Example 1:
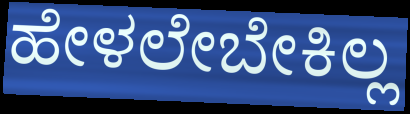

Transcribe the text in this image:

ಹೇಳಲೇಬೇಕಿಲ್ಲ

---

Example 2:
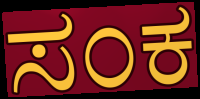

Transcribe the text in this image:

ಸಂಕ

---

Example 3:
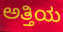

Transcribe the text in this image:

ಅತ್ತಿಯ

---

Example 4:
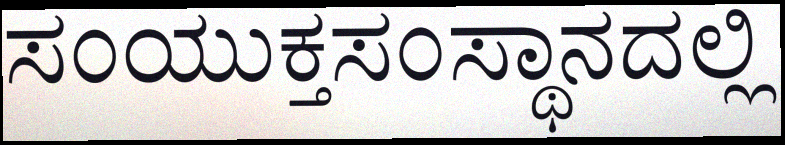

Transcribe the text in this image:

ಸಂಯುಕ್ತಸಂಸ್ಥಾನದಲ್ಲಿ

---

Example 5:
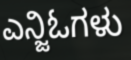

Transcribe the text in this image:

ಎನ್ಜಿಓಗಳು